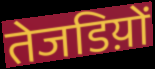
तेजडिय़ों